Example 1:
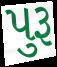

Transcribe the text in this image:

પુરૂ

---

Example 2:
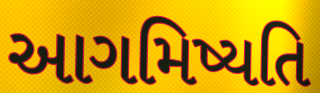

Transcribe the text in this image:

આગમિષ્યતિ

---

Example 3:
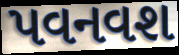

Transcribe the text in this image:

પવનવશ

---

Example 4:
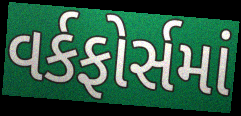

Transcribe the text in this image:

વર્કફોર્સમાં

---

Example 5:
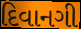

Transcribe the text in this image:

દિવાનગી